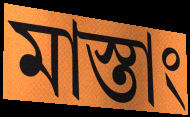
মাস্তাং